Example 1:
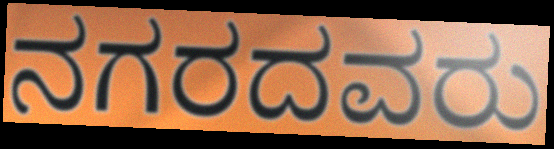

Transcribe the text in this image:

ನಗರದವರು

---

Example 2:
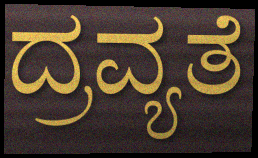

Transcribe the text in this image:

ದ್ರವ್ಯತೆ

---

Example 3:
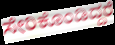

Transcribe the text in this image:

ಸೇರಿಕೊಂಡಿದ್ದರೆ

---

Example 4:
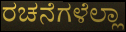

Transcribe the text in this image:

ರಚನೆಗಳೆಲ್ಲಾ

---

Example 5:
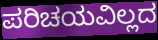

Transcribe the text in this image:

ಪರಿಚಯವಿಲ್ಲದ